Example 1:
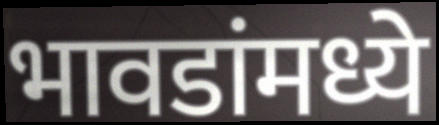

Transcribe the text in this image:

भावडांमध्ये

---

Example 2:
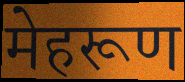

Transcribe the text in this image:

मेहरूण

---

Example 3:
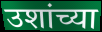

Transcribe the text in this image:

उशांच्या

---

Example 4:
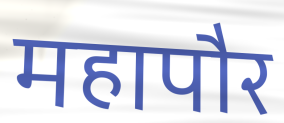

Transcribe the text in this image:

महापौर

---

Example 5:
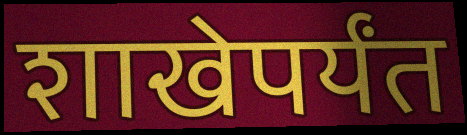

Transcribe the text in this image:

शाखेपर्यंत